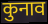
कुनाव